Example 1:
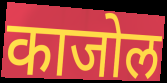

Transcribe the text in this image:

काजोल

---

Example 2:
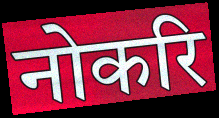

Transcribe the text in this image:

नोकरि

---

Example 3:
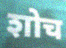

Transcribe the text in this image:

शोच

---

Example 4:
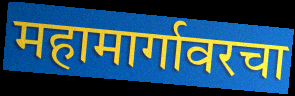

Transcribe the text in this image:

महामार्गावरचा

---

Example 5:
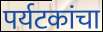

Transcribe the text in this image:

पर्यटकांचा